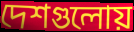
দেশগুলোয়